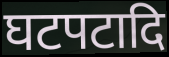
घटपटादि